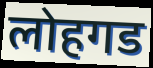
लोहगड